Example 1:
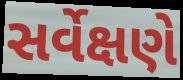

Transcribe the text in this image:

સર્વેક્ષણે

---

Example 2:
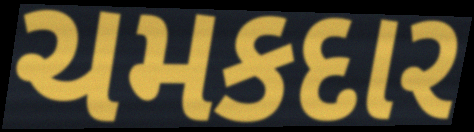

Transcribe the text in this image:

ચમકદાર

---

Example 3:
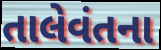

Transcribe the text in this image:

તાલેવંતના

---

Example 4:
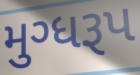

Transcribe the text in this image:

મુગ્ધરૂપ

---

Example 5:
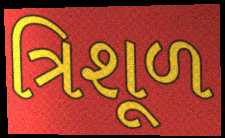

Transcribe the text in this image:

ત્રિશૂળ